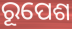
ରୂପେଶ